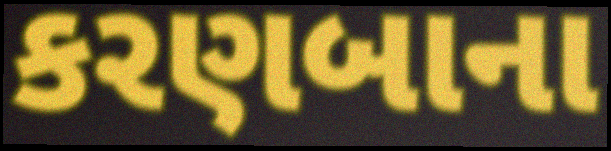
કરણબાના